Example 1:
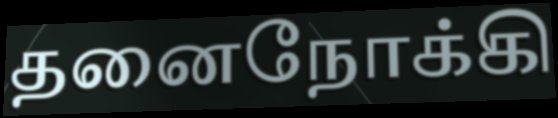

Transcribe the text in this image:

தனைநோக்கி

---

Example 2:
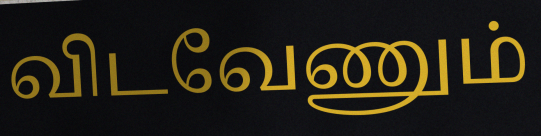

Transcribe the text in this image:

விடவேணும்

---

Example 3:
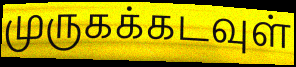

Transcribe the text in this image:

முருகக்கடவுள்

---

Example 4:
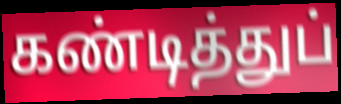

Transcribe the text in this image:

கண்டித்துப்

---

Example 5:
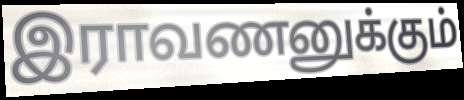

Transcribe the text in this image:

இராவணனுக்கும்